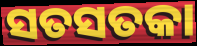
ସତସତକା